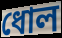
ধোল